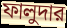
ফালুদার